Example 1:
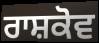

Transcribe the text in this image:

ਰਾਸ਼ਕੋਵ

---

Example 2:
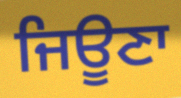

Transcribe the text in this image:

ਜਿਊਣਾ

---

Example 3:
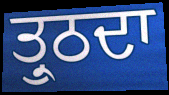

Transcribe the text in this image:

ਤ੍ਰੁਠਦਾ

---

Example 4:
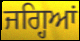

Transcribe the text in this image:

ਜਗ੍ਹਿਆਂ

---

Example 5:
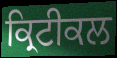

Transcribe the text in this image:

ਕ੍ਰਿਟੀਕਲ